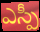
ఎస్పీ